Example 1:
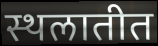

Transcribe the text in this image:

स्थलातीत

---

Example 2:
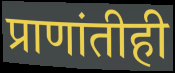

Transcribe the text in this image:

प्राणांतीही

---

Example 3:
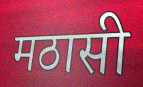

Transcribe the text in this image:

मठासी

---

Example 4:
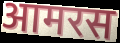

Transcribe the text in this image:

आमरस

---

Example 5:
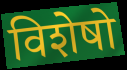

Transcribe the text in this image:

विशेषो